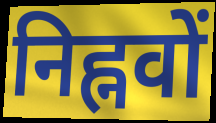
निह्नवों